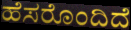
ಹೆಸರೊಂದಿದೆ